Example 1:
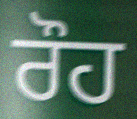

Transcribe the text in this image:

ਰੌਹ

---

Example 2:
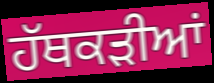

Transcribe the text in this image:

ਹੱਥਕੜੀਆਂ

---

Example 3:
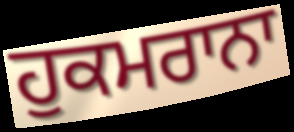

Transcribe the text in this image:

ਹੁਕਮਰਾਨਾ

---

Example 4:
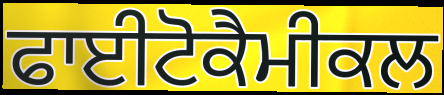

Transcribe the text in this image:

ਫਾਈਟੋਕੈਮੀਕਲ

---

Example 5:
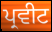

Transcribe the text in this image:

ਪ੍ਰਵੀਟ